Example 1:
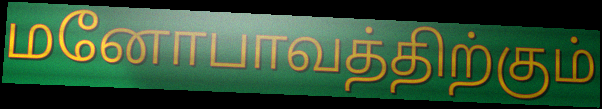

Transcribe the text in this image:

மனோபாவத்திற்கும்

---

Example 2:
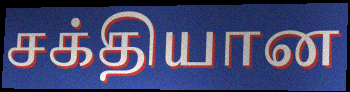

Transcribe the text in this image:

சக்தியான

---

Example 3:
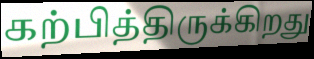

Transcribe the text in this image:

கற்பித்திருக்கிறது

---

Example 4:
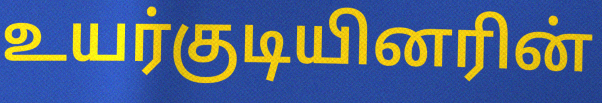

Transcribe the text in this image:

உயர்குடியினரின்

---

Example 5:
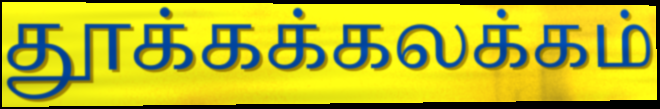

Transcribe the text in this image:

தூக்கக்கலக்கம்